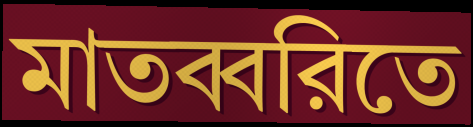
মাতব্বরিতে